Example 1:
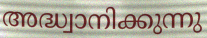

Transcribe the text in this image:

അദ്ധ്വാനിക്കുന്നു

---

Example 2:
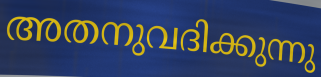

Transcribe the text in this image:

അതനുവദിക്കുന്നു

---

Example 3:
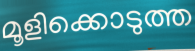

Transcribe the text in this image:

മൂളിക്കൊടുത്ത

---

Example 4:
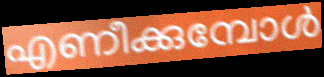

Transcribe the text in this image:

എണീക്കുമ്പോൾ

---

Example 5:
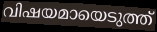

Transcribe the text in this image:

വിഷയമായെടുത്ത്